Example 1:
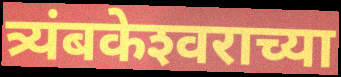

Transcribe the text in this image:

त्र्यंबकेश्‍वराच्या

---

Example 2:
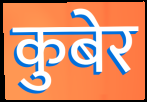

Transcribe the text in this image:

कुबेर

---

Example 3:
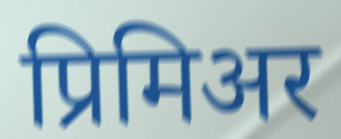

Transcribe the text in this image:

प्रिमिअर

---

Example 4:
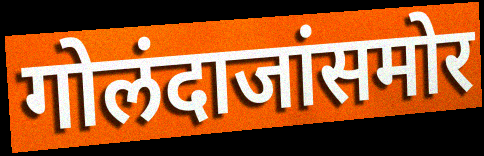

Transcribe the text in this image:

गोलंदाजांसमोर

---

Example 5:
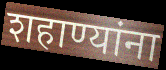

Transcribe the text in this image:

शहाण्यांना